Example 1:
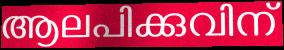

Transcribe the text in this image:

ആലപിക്കുവിന്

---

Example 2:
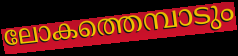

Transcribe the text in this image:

ലോകത്തെമ്പാടും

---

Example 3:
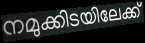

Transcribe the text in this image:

നമുക്കിടയിലേക്ക്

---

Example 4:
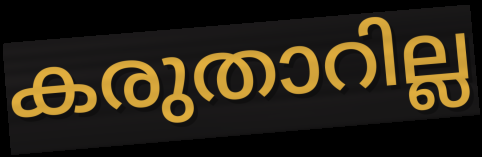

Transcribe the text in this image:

കരുതാറില്ല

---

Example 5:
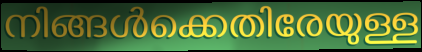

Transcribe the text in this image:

നിങ്ങൾക്കെതിരേയുള്ള